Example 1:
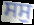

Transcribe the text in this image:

ਸਸੁ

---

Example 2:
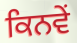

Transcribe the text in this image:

ਕਿਨਵੇਂ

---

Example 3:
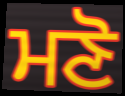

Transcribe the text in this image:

ਮਣੋ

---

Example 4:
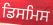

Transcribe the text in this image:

ਡਿਸਮਿਸ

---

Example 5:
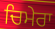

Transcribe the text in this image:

ਚਿਮੇਰਾ